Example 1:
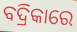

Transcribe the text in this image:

ବଦ୍ରିକାରେ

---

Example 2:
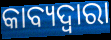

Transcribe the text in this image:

କାବ୍ୟଦ୍ୱାରା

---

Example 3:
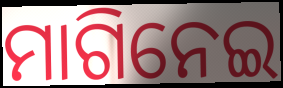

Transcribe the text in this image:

ମାଗିନେଇ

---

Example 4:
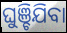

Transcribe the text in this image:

ଘୁଞ୍ଚିଯିବା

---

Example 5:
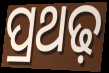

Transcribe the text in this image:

ପ୍ରଥଢ଼